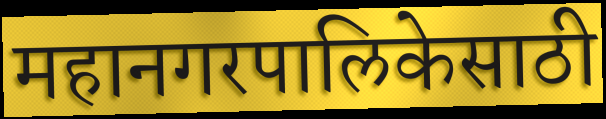
महानगरपालिकेसाठी